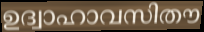
ഉദ്വാഹാവസിതൗ